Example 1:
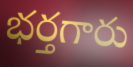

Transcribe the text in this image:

భర్తగారు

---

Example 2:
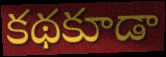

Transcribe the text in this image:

కథకూడా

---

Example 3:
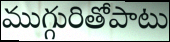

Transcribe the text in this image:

ముగ్గురితోపాటు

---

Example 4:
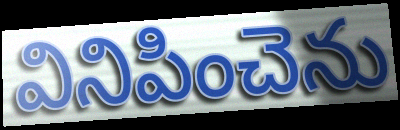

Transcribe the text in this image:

వినిపించెను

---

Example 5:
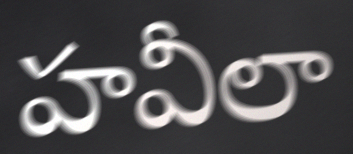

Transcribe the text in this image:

హవీలా